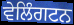
ਵੇਲਿੰਗਟਨ